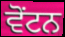
ਵੋਂਟਨ